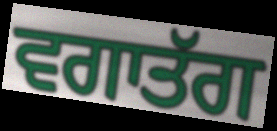
ਵਗਾਤੱਗ